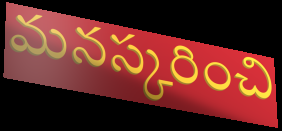
మనస్కరించి